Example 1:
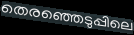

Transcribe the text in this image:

തെരഞ്ഞെടുപ്പിലെ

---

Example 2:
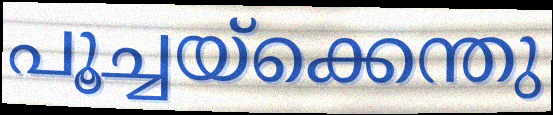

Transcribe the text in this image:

പൂച്ചയ്ക്കെന്തു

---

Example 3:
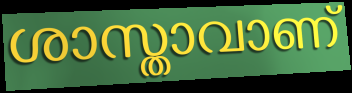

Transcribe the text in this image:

ശാസ്താവാണ്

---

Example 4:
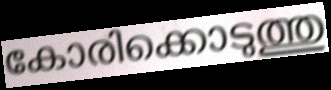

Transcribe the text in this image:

കോരിക്കൊടുത്തു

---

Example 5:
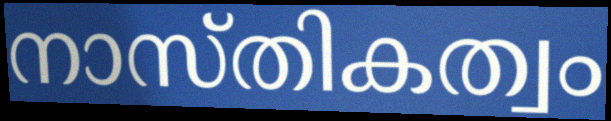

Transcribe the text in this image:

നാസ്തികത്വം